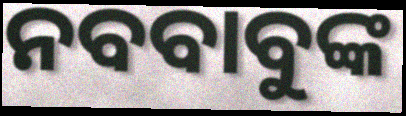
ନବବାବୁଙ୍କ